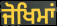
ਜੋਖਿਮਾਂ